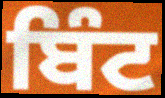
ਬਿੰਟ